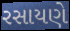
રસાયણે